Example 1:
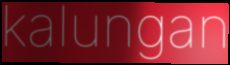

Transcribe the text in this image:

kalungan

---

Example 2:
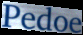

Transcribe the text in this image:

Pedoe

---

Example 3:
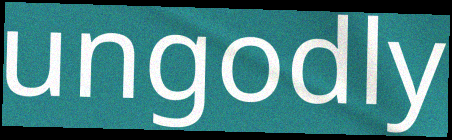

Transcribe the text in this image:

ungodly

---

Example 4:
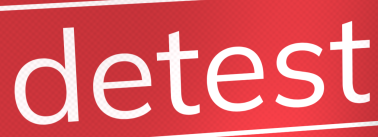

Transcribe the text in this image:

detest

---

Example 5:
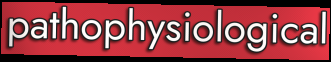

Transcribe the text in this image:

pathophysiological